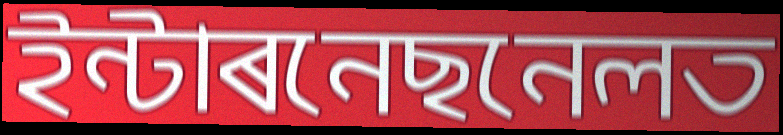
ইন্টাৰনেছনেলত